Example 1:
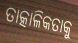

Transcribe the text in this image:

ତାତ୍କାଳିକତାକୁ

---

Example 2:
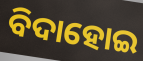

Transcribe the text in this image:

ବିଦାହୋଇ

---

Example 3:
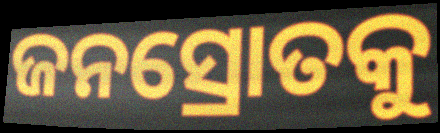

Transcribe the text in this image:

ଜନସ୍ରୋତକୁ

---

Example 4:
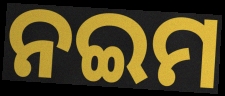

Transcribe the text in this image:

ନଇମ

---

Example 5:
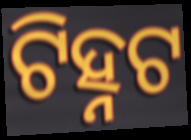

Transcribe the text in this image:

ଟିହ୍ନଟ